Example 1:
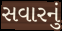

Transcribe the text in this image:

સવારનું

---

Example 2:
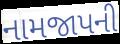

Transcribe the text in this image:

નામજાપની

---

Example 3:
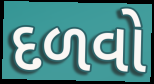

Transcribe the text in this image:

દળવો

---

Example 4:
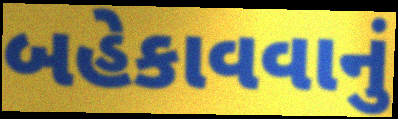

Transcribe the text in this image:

બહેકાવવાનું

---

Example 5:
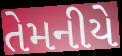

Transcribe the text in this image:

તેમનીયે